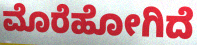
ಮೊರೆಹೋಗಿದೆ